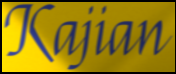
Kajian